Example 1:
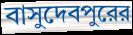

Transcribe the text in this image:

বাসুদেবপুরের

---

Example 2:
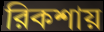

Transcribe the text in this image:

রিকশায়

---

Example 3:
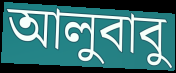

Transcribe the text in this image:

আলুবাবু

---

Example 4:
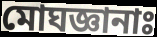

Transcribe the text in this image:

মোঘজ্ঞানাঃ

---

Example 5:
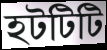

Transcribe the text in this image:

হটটিটি